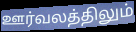
ஊர்வலத்திலும்